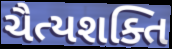
ચૈત્યશક્તિ